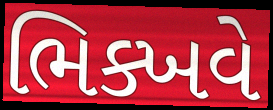
ભિક્ખવે